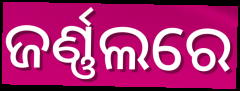
ଜର୍ଣ୍ଣଲରେ